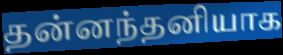
தன்னந்தனியாக